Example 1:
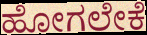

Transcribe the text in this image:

ಹೋಗಲೇಕೆ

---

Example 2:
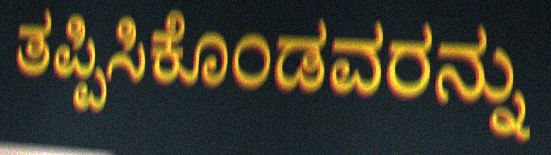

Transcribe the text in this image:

ತಪ್ಪಿಸಿಕೊಂಡವರನ್ನು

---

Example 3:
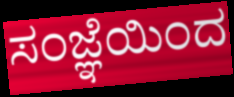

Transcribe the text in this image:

ಸಂಜ್ಞೆಯಿಂದ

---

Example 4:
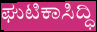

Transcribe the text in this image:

ಘುಟಿಕಾಸಿದ್ಧಿ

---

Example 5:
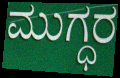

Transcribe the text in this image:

ಮುಗ್ಧರ